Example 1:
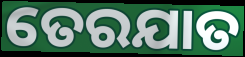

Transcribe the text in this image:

ତେରଯାତ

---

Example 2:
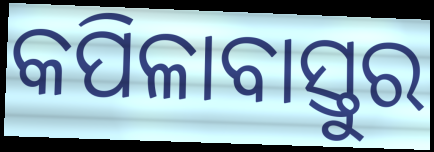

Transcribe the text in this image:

କପିଳାବାସ୍ତୁର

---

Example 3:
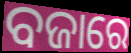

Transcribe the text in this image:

ବଜାରେ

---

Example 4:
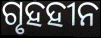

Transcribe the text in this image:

ଗୃହହୀନ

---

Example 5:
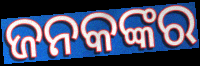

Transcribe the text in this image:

ଜନକଙ୍କର